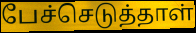
பேச்செடுத்தாள்